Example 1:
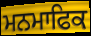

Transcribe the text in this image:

ਮਨਮਾਫਿਕ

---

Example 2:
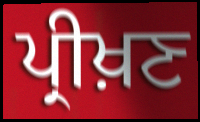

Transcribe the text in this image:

ਪ੍ਰੀਖ਼ਣ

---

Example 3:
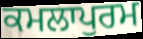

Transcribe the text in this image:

ਕਮਲਾਪੁਰਮ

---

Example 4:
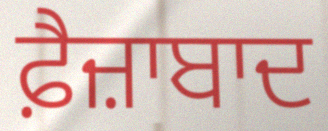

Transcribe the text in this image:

ਫ਼ੈਜ਼ਾਬਾਦ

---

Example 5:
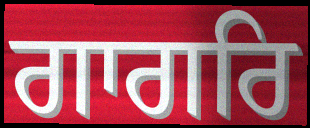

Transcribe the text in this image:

ਗਾਗਰਿ